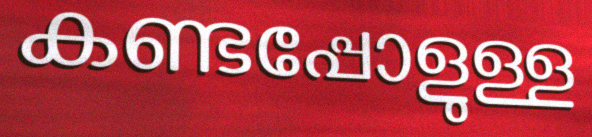
കണ്ടപ്പോളുള്ള